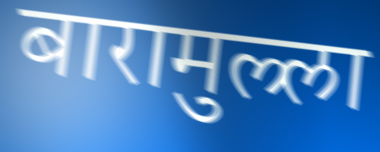
बारामुल्ला